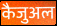
कैजुअल